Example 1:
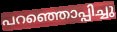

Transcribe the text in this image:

പറഞ്ഞൊപ്പിച്ചു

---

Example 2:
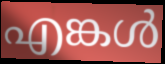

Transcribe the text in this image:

എങ്കൾ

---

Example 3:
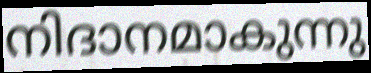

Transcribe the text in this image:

നിദാനമാകുന്നു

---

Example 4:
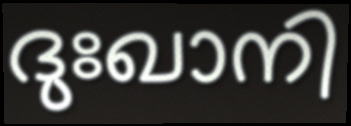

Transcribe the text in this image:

ദുഃഖാനി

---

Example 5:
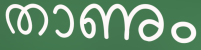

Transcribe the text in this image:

താണും